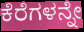
ಕೆರೆಗಳನ್ನೇ